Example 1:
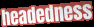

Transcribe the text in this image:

headedness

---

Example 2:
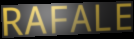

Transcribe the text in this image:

RAFALE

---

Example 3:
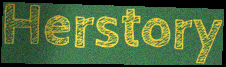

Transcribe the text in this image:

Herstory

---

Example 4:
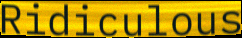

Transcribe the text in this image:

Ridiculous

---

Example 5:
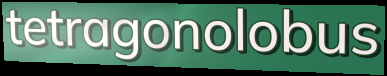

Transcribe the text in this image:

tetragonolobus